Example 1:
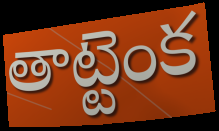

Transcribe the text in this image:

తాట్టెంక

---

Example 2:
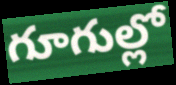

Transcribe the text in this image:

గూగుల్లో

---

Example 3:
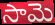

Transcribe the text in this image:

సామె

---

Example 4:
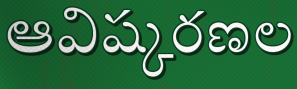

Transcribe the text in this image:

ఆవిష్కరణల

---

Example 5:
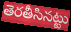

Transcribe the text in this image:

తెరతీసినట్టు